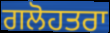
ਗਲੋਹਤਰਾ